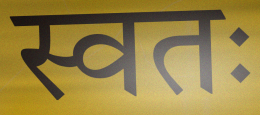
स्वतः